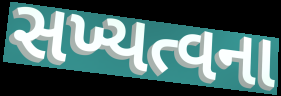
સખ્યત્વના